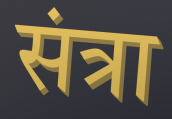
संत्रा